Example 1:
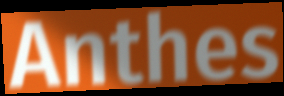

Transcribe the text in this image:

Anthes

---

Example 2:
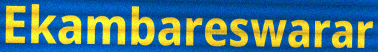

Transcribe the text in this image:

Ekambareswarar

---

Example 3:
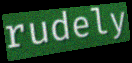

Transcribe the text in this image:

rudely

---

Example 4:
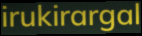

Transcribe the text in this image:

irukirargal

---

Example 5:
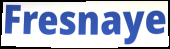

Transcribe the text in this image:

Fresnaye